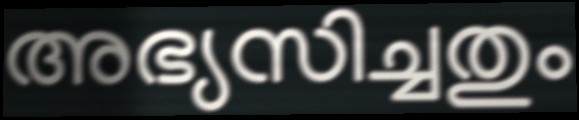
അഭ്യസിച്ചതും